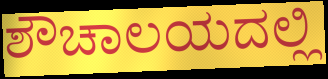
ಶೌಚಾಲಯದಲ್ಲಿ